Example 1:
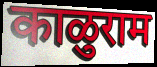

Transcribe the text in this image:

काळुराम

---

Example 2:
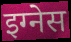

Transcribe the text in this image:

इग्नेस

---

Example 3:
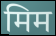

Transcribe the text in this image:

मिम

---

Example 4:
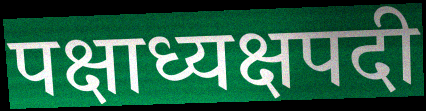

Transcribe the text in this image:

पक्षाध्यक्षपदी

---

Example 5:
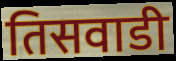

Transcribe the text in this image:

तिसवाडी